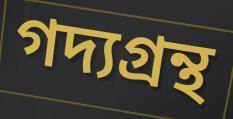
গদ্যগ্রন্থ